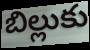
బిల్లుకు